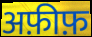
अफ़ीफ़